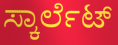
ಸ್ಕಾರ್ಲೆಟ್